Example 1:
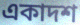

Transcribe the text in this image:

একাদশ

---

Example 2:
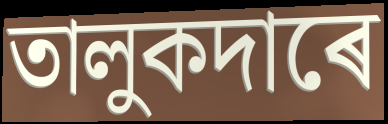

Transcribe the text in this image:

তালুকদাৰে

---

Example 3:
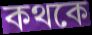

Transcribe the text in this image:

কথকে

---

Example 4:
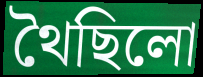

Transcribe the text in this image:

থৈছিলো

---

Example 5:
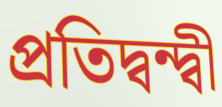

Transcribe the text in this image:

প্ৰতিদ্বন্দ্বী